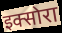
इक्सोरा